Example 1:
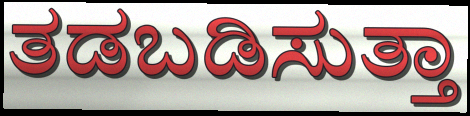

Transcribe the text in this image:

ತಡಬಡಿಸುತ್ತಾ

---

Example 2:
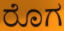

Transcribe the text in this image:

ರೊಗ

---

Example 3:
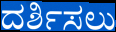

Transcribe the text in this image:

ದರ್ಶಿಸಲು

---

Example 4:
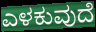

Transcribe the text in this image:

ಎಳಕುವುದೆ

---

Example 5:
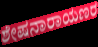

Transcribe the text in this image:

ಶೇಷನಾರಾಯಣರ